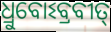
ଧ୍ରୁବୋଽବ୍ରବୀତ୍